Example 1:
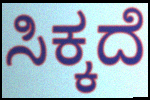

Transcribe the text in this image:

ಸಿಕ್ಕದೆ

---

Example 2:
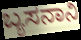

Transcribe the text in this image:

ಬ್ಯಸನಾನಿ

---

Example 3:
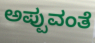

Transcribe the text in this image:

ಅಪ್ಪುವಂತೆ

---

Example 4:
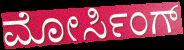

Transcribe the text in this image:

ಮೋರ್ಸಿಂಗ್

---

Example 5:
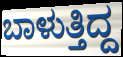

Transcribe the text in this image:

ಬಾಳುತ್ತಿದ್ದ